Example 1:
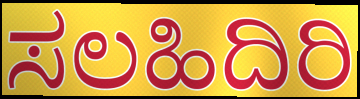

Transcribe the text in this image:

ಸಲಹಿದಿರಿ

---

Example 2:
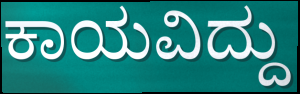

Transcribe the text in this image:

ಕಾಯವಿದ್ದು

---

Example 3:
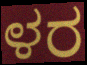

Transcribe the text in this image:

ಳರ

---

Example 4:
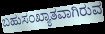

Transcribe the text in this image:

ಬಹುಸಂಖ್ಯಾತವಾಗಿರುವ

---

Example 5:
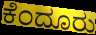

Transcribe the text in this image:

ಕೆಂದೂರು